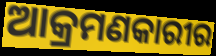
ଆକ୍ରମଣକାରୀର